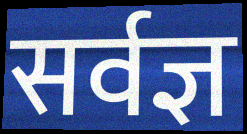
सर्वज्ञ